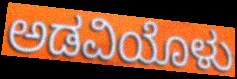
ಅಡವಿಯೊಳು